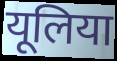
यूलिया